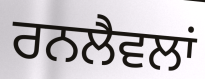
ਰਨਲੈਵਲਾਂ